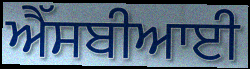
ਐੱਸਬੀਆਈ